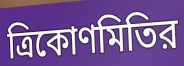
ত্রিকোণমিতির